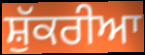
ਸ਼ੁੱਕਰੀਆ